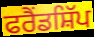
ਫਰੈਂਡਸ਼ਿੱਪ